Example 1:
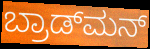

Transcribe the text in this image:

ಬ್ರಾಡ್‌ಮನ್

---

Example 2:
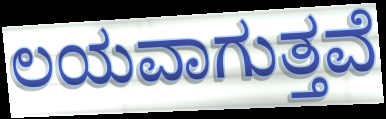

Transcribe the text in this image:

ಲಯವಾಗುತ್ತವೆ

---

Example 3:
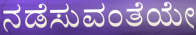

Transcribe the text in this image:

ನಡೆಸುವಂತೆಯೇ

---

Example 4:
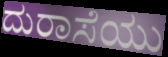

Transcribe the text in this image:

ದುರಾಸೆಯು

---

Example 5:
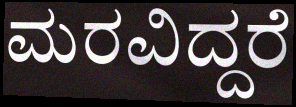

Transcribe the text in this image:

ಮರವಿದ್ದರೆ